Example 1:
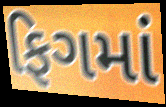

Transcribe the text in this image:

ફિગમાં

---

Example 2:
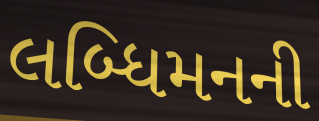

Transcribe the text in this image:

લબ્ધિમનની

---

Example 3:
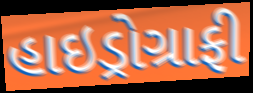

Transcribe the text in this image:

હાઇડ્રોગ્રાફી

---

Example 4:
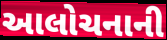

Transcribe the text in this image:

આલોચનાની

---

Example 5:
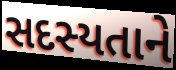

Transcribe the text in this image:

સદસ્યતાને